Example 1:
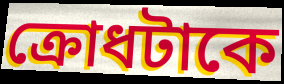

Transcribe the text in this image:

ক্রোধটাকে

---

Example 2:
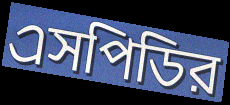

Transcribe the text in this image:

এসপিডির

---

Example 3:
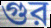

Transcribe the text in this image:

গুর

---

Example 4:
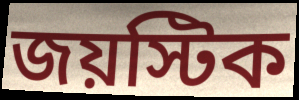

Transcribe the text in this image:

জয়স্টিক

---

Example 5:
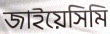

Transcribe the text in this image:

জাইয়েসিমি